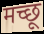
मच्छू